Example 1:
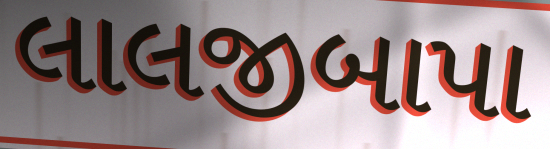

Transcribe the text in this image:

લાલજીબાપા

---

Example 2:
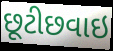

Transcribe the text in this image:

છૂટીછવાઇ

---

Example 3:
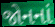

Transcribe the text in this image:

જોનનાં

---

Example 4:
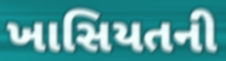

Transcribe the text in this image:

ખાસિયતની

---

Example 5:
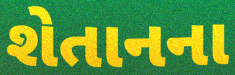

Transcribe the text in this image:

શેતાનના